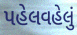
પહેલવહેલું